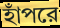
হাঁপরে